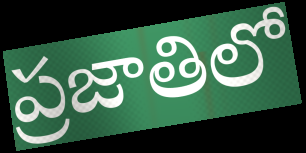
ప్రజాతిలో